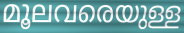
മൂലവരെയുള്ള